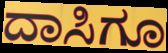
ದಾಸಿಗೂ